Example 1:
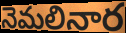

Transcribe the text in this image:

నెమలినార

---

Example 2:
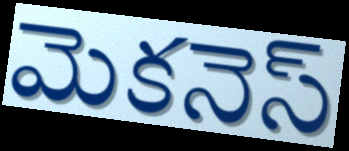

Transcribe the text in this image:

మెకనెస్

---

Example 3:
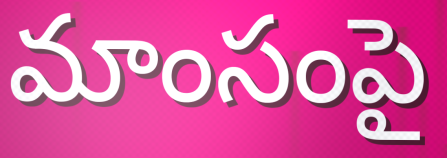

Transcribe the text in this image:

మాంసంపై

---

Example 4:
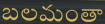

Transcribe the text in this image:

బలమంతా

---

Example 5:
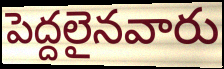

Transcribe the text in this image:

పెద్దలైనవారు